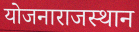
योजनाराजस्थान